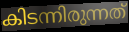
കിടന്നിരുന്നത്